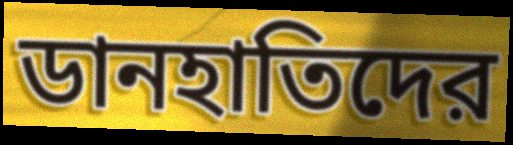
ডানহাতিদের